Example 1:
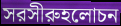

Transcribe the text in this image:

সরসীরুহলোচন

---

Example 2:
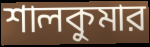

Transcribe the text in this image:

শালকুমার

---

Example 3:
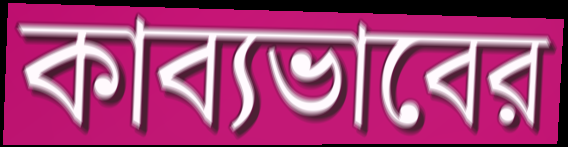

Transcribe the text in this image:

কাব্যভাবের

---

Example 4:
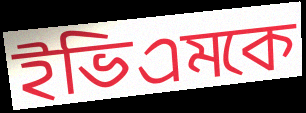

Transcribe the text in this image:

ইভিএমকে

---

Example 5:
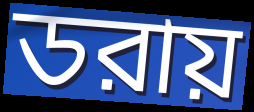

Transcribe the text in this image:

ডরায়